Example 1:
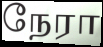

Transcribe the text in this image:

நேரா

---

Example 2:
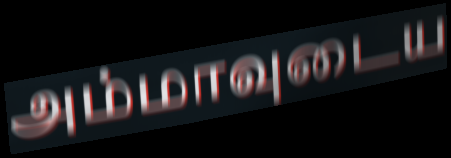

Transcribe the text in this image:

அம்மாவுடைய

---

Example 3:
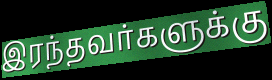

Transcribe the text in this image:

இரந்தவர்களுக்கு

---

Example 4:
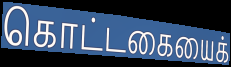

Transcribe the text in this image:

கொட்டகையைக்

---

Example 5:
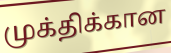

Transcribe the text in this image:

முக்திக்கான